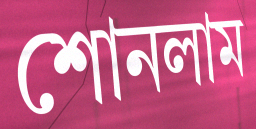
শোনলাম